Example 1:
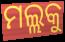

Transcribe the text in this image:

ମଲ୍ଲକୁ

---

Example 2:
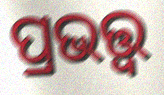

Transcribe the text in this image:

ପ୍ରଭତ୍ତ୍ଵ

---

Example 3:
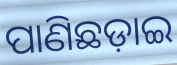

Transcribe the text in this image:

ପାଣିଛଡ଼ାଇ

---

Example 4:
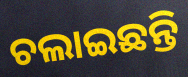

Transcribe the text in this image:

ଚଲାଇଛନ୍ତି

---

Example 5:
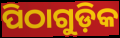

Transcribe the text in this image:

ପିଠାଗୁଡ଼ିକ